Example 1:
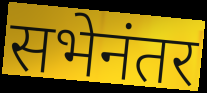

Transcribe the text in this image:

सभेनंतर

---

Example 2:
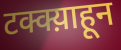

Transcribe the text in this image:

टक्क्य़ाहून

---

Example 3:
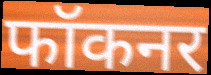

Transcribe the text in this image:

फॉकनर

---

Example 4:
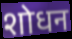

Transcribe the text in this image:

शोधन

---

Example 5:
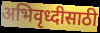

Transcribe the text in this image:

अभिवृध्दीसाठी